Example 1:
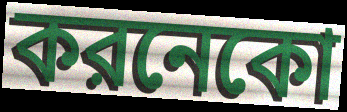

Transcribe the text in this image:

করনেকো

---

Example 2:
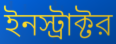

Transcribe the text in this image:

ইনস্ট্রাক্টর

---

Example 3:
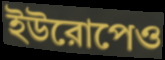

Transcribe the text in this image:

ইউরোপেও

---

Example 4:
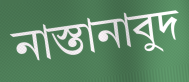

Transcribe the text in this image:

নাস্তানাবুদ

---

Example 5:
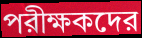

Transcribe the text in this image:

পরীক্ষকদের